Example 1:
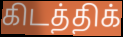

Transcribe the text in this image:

கிடத்திக்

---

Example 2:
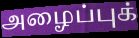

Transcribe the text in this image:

அழைப்புக்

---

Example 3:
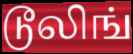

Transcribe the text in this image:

டூலிங்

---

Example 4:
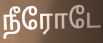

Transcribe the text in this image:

நீரோடே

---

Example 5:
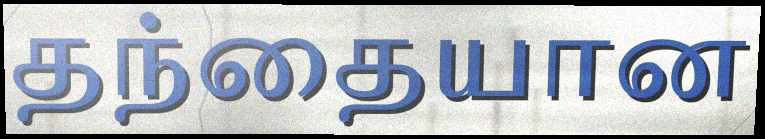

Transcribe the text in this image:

தந்தையான